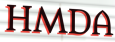
HMDA